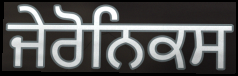
ਜੇਰੋਨਿਕਸ